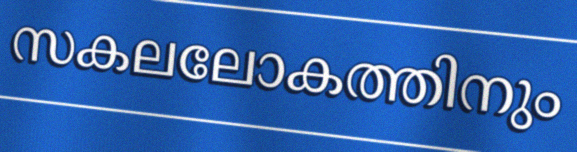
സകലലോകത്തിനും